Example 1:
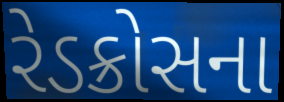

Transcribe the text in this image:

રેડક્રોસના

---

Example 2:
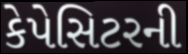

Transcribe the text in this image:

કેપેસિટરની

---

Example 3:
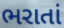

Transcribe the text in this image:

ભરાતાં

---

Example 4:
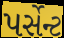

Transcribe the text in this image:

પર્સેન્ટ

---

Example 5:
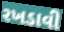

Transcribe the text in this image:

રખડાવી